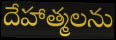
దేహాత్మలను